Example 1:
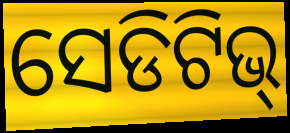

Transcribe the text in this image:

ସେଡିଟିଭ୍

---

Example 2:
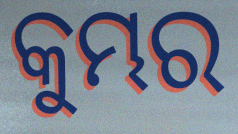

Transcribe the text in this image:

କୁମ୍ଭର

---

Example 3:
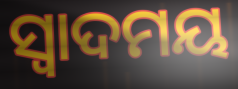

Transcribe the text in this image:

ସ୍ଵାଦମୟ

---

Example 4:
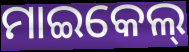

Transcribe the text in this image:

ମାଇକେଲ୍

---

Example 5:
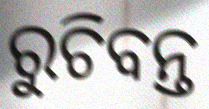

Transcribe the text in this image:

ରୁଚିବନ୍ତ